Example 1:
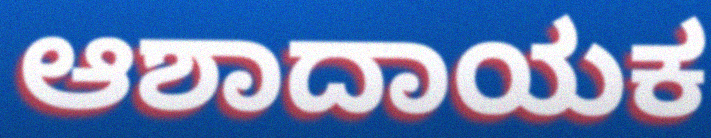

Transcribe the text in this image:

ಆಶಾದಾಯಕ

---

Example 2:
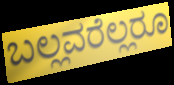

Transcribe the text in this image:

ಬಲ್ಲವರೆಲ್ಲರೂ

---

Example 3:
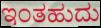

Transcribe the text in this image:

ಇಂತಹುದು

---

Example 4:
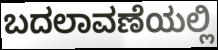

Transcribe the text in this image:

ಬದಲಾವಣೆಯಲ್ಲಿ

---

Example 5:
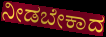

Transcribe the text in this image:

ನೀಡಬೇಕಾದ